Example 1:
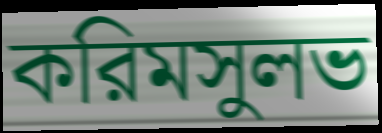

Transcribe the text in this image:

করিমসুলভ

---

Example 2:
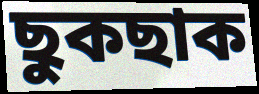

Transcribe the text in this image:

ছুকছাক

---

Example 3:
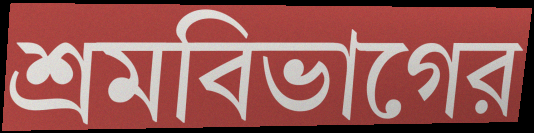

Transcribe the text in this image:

শ্রমবিভাগের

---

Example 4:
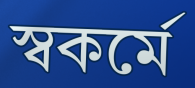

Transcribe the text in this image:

স্বকর্মে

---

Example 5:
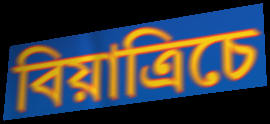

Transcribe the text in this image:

বিয়াত্রিচে